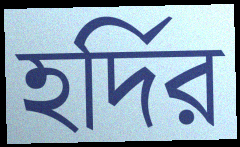
হর্দির